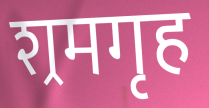
श्रमगृह